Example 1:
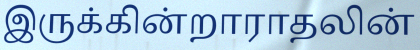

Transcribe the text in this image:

இருக்கின்றாராதலின்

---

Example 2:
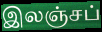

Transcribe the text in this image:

இலஞ்சப்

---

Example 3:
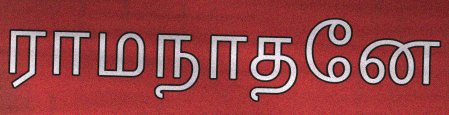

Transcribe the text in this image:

ராமநாதனே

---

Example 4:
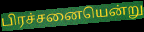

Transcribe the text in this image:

பிரச்சனையென்று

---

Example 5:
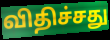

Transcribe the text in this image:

விதிச்சது